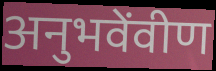
अनुभवेंवीण